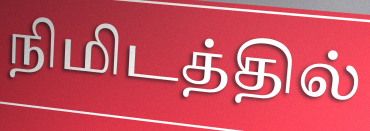
நிமிடத்தில்